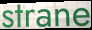
strane